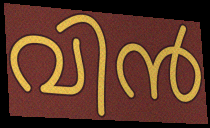
വിൻ